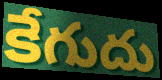
కేగుదు